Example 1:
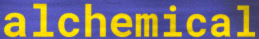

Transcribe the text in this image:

alchemical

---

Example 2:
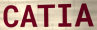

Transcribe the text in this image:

CATIA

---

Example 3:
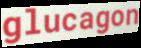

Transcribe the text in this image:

glucagon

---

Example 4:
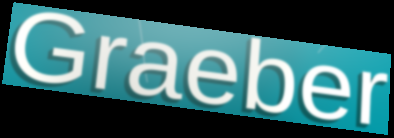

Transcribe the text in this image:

Graeber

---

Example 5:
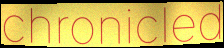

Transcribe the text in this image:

chronicled